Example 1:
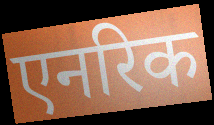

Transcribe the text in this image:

एनरिक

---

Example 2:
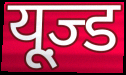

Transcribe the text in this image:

यूज़्ड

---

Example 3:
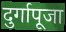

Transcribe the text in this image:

दुर्गापूजा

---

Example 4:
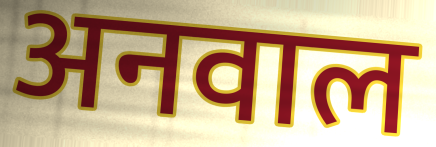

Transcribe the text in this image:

अनवाल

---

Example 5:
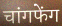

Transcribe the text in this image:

चांगफेंग